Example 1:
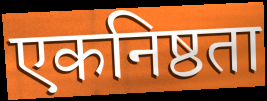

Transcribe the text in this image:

एकनिष्ठता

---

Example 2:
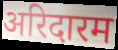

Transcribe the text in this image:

अरिदारम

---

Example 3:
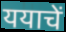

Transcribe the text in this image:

ययाचें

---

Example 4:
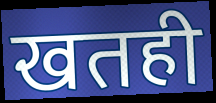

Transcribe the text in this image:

खतही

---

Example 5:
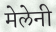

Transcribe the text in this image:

मेलेनी